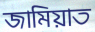
জামিয়াত